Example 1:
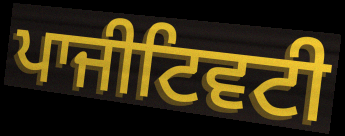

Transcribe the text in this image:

ਪਾਜੀਟਿਵਟੀ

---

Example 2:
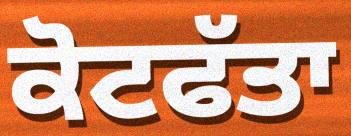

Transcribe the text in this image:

ਕੋਟਫੱਤਾ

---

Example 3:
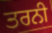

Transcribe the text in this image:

ਤਰਨੀ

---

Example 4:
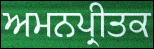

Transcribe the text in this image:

ਅਮਨਪ੍ਰੀਤਕ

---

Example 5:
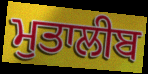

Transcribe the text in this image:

ਮੁਤਾਲੀਬ